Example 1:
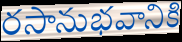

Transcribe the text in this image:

రసానుభవానికి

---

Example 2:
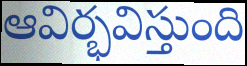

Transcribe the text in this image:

ఆవిర్భవిస్తుంది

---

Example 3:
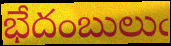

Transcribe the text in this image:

భేదంబులుఁ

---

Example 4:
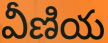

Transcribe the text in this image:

వీణియ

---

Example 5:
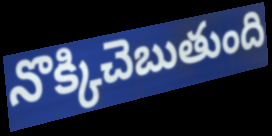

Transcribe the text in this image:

నొక్కిచెబుతుంది